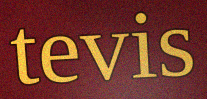
tevis